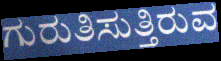
ಗುರುತಿಸುತ್ತಿರುವ